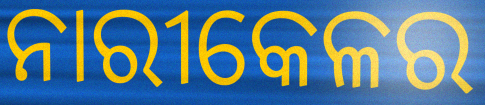
ନାରୀକେଳର